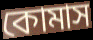
কোমাস